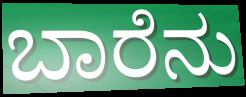
ಬಾರೆನು